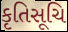
કૃતિસૂચિ